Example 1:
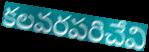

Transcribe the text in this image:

కలవరపరిచేవి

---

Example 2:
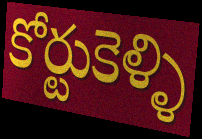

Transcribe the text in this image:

కోర్టుకెళ్ళి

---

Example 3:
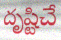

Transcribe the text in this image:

దృష్టిచే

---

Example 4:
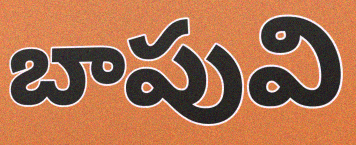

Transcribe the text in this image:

బాపువి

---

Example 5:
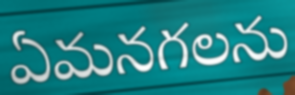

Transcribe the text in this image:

ఏమనగలను